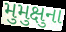
મુમુક્ષુના